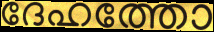
ദേഹത്തോ